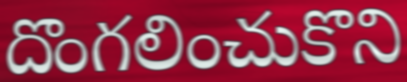
దొంగలించుకొని